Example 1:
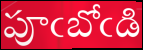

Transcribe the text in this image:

పూఁబోఁడి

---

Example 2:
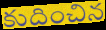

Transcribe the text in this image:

కుదించిన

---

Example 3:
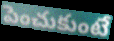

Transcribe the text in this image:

పెంచుకుంటే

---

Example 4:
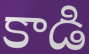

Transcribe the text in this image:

కాడి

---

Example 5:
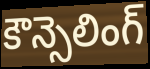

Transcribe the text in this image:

కౌన్సెలింగ్